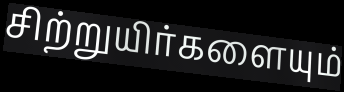
சிற்றுயிர்களையும்